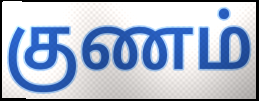
குணம்